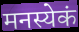
मनस्येकं